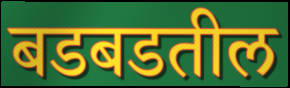
बडबडतील